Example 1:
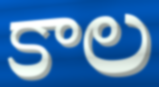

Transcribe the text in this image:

కాల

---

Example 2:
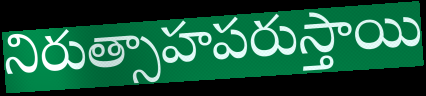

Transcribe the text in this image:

నిరుత్సాహపరుస్తాయి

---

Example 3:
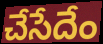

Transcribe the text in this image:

చేసేదేం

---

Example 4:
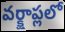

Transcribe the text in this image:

వర్క్షాప్లలో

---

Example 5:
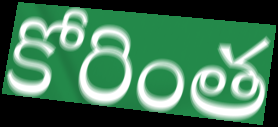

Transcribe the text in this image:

కోరింత